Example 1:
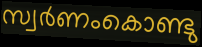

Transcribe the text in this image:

സ്വർണംകൊണ്ടു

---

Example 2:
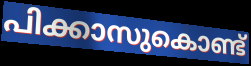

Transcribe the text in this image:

പിക്കാസുകൊണ്ട്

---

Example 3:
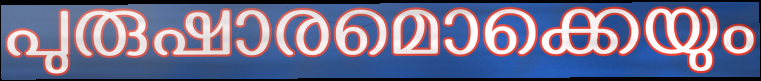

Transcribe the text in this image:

പുരുഷാരമൊക്കെയും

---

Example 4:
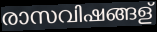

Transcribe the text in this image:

രാസവിഷങ്ങള്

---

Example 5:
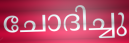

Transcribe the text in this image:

ചോദിച്ചു